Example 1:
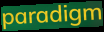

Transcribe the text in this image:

paradigm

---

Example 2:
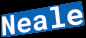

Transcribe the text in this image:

Neale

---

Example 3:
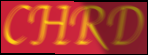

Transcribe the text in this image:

CHRD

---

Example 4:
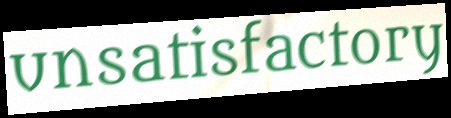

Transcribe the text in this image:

unsatisfactory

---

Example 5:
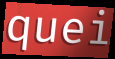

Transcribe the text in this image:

quei